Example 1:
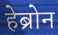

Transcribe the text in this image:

हेब्रोन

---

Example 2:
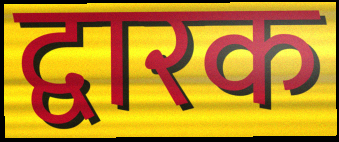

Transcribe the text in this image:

द्वारक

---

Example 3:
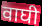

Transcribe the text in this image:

वाघी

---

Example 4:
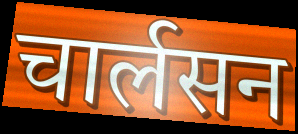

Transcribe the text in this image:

चार्लसन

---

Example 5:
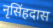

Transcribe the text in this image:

नृसिंहदास